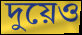
দুয়েও